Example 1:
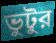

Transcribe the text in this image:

ভুটুর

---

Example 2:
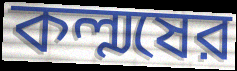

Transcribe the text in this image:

কল্মষের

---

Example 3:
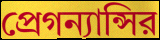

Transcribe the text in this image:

প্রেগন্যান্সির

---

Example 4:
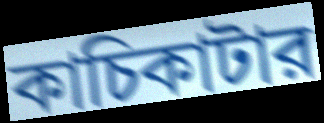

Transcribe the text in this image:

কাচিকাটার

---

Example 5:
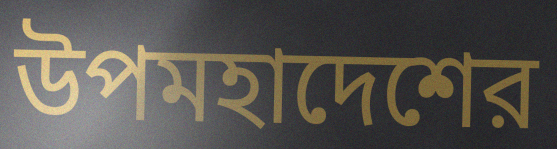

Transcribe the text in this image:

উপমহাদেশের